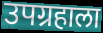
उपग्रहाला